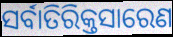
ସର୍ବାତିରିକ୍ତସାରେଣ